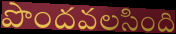
పొందవలసింది